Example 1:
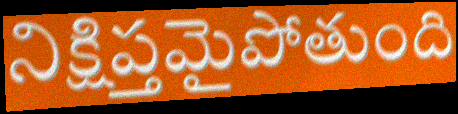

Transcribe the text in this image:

నిక్షిప్తమైపోతుంది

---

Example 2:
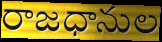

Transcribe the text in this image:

రాజధానుల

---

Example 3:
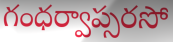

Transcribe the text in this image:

గంధర్వాప్సరసో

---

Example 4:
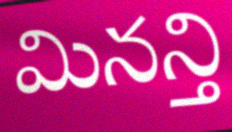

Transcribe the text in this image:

మినన్తి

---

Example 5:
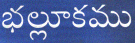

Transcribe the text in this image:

భల్లూకము